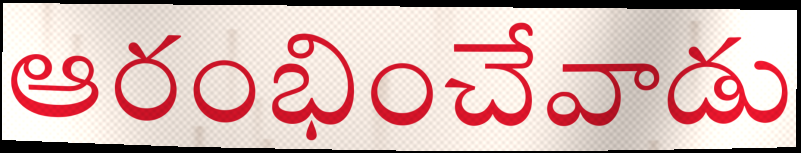
ఆరంభించేవాడు